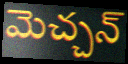
మెచ్చన్